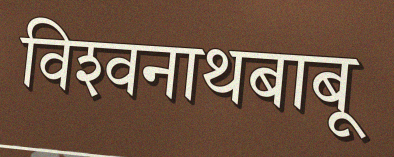
विश्‍वनाथबाबू